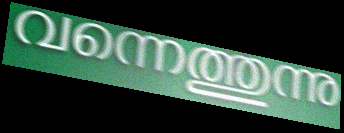
വന്നെത്തുന്നു